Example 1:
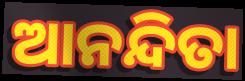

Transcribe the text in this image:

ଆନନ୍ଦିତା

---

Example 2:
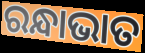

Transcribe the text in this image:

ରନ୍ଧାଭାତ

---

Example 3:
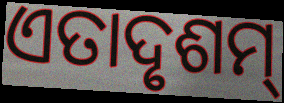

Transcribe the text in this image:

ଏତାଦୃଶମ୍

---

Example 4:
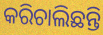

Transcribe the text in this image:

କରିଚାଲିଛନ୍ତି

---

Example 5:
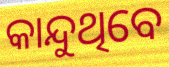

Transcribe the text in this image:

କାନ୍ଦୁଥିବେ